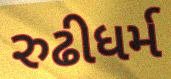
રુઢીધર્મ